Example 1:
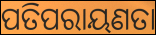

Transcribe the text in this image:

ପତିପରାୟଣତା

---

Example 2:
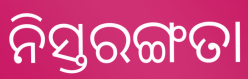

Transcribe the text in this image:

ନିସ୍ତରଙ୍ଗତା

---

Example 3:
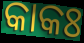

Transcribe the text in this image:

କାକଃ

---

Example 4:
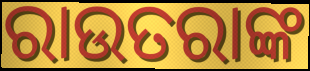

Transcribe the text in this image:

ରାଉତରାଙ୍କ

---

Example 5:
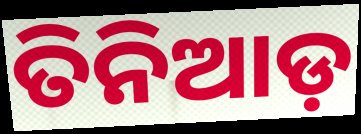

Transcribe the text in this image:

ତିନିଆଡ଼